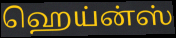
ஹெய்ன்ஸ்